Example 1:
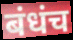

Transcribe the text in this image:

बंधंच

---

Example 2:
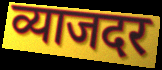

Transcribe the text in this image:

व्याजदर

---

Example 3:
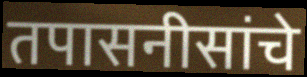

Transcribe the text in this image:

तपासनीसांचे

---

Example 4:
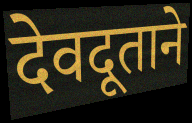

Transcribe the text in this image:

देवदूताने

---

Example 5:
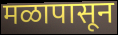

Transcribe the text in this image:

मळापासून